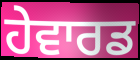
ਹੇਵਾਰਡ